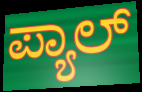
ಪ್ಯಾಲ್